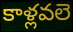
కాళ్లవలె